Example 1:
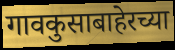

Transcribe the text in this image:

गावकुसाबाहेरच्या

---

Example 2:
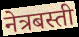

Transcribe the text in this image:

नेत्रबस्ती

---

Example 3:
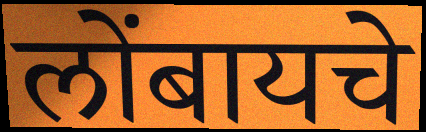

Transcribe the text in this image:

लोंबायचे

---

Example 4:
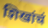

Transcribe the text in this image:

शिखांचं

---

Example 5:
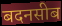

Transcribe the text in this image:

बदनसीब